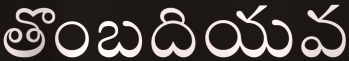
తొంబదియవ